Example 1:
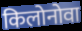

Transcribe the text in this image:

किलोनोवा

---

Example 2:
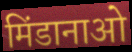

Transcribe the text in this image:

मिंडानाओ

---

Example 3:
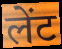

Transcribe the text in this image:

लेंट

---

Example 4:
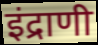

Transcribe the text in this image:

इंद्राणी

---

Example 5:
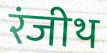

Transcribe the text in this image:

रंजीथ